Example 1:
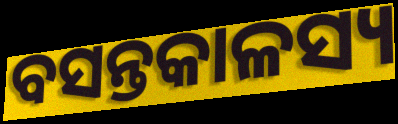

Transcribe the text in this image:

ବସନ୍ତକାଳସ୍ୟ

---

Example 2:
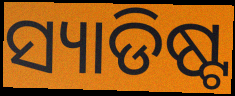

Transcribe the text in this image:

ସ୍ୟାଡିଷ୍ଟ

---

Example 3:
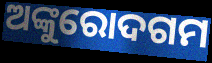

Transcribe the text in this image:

ଅଙ୍କୁରୋଦଗମ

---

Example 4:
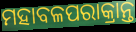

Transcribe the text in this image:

ମହାବଳପରାକ୍ରାନ୍ତ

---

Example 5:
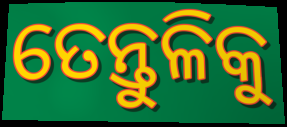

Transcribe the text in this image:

ତେନ୍ତୁଳିକୁ